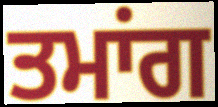
ਤਮਾਂਗ